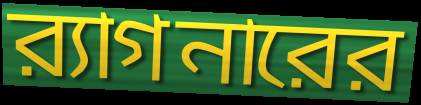
র‍্যাগনারের